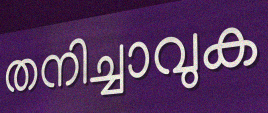
തനിച്ചാവുക